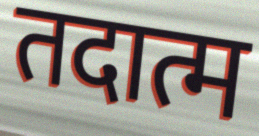
तदात्म